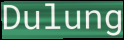
Dulung